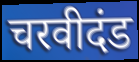
चरवीदंड